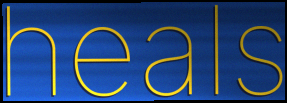
heals